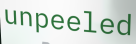
unpeeled